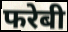
फरेबी